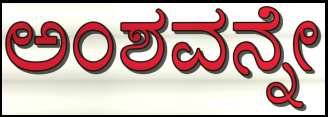
ಅಂಶವನ್ನೇ